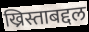
ख्रिस्ताबद्दल